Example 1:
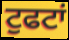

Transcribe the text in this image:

ਟੁਫਟਾਂ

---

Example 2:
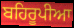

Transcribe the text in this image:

ਬਹਿਰੂਪੀਆ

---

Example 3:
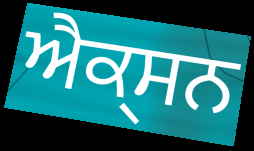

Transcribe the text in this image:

ਐਕ੍ਸਨ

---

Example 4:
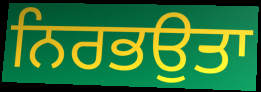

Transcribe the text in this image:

ਨਿਰਭਉਤਾ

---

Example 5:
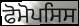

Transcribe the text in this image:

ਫੋਮੋਪਸਿਸ